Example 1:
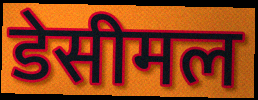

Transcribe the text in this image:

डेसीमल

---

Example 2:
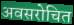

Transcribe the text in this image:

अवसरोचित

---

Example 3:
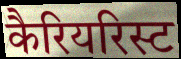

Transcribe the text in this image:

कैरियरिस्ट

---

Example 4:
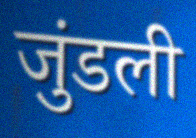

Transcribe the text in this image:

जुंडली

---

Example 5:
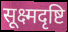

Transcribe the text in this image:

सूक्ष्मदृष्टि